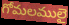
గోమలములై